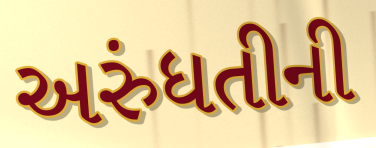
અરુંધતીની